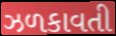
ઝળકાવતી